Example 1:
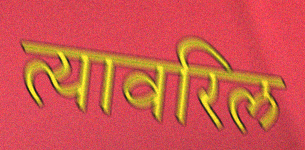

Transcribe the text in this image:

त्यावरिल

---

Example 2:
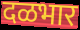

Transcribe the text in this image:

दळभार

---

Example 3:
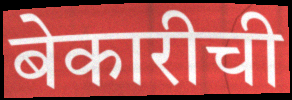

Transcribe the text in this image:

बेकारीची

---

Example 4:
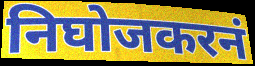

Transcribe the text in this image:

निघोजकरनं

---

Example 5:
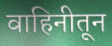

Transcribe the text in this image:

वाहिनीतून